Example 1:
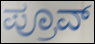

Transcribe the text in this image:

ಪ್ರೂವ್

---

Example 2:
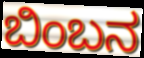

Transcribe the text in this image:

ಬಿಂಬನ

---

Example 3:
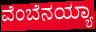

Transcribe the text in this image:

ವೆಂಬೆನಯ್ಯಾ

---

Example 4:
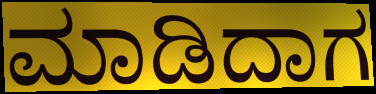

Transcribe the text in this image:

ಮಾಡಿದಾಗ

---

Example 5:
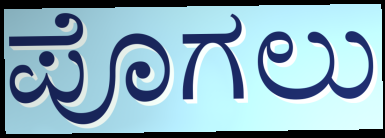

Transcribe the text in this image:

ಪೊಗಲು